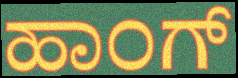
ಹಾಂಗ್